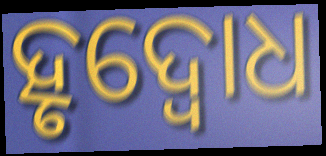
ହୃଦ୍ବୋଧ